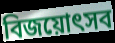
বিজয়োৎসব